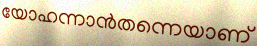
യോഹന്നാൻതന്നെയാണ്